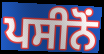
ਪਸੀਨੋਂ